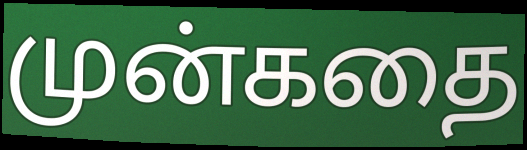
முன்கதை